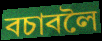
বচাবলৈ